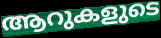
ആറുകളുടെ